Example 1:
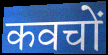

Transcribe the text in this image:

कवचों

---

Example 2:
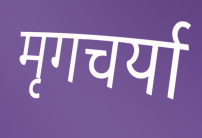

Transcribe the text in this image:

मृगचर्या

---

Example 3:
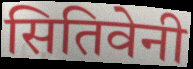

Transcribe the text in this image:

सितिवेनी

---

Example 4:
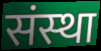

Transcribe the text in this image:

संस्‍था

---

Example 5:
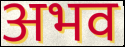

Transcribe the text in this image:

अभव